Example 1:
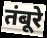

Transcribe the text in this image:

तंबूरे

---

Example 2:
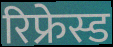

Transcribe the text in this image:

रिफ्रेस्ड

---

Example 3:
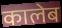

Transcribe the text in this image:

कालेब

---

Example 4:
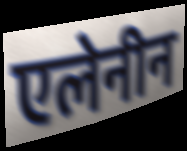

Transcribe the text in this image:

एलेनीन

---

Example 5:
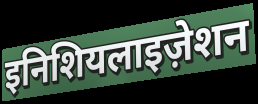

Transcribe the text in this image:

इनिशियलाइज़ेशन